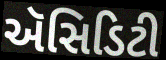
ઍસિડિટી